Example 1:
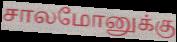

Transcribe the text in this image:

சாலமோனுக்கு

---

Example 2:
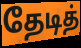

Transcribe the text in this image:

தேடித்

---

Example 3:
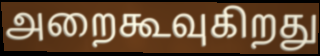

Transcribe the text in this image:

அறைகூவுகிறது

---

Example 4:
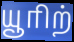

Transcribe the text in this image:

யூரிற்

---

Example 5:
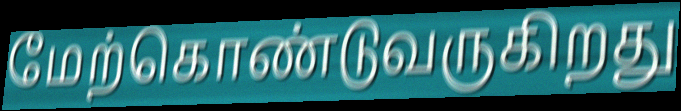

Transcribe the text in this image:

மேற்கொண்டுவருகிறது